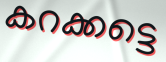
കറക്കട്ടെ